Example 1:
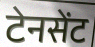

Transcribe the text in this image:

टेनसेंट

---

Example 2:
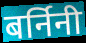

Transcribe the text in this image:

बर्निनी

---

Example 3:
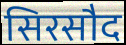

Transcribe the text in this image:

सिरसौद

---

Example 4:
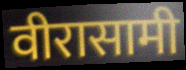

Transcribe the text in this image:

वीरासामी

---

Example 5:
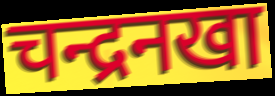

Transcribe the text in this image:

चन्द्रनखा